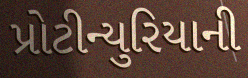
પ્રોટીન્યુરિયાની